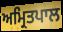
ਅਮ੍ਰਿਤਪਾਲ